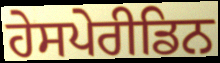
ਹੇਸਪੇਰੀਡਿਨ